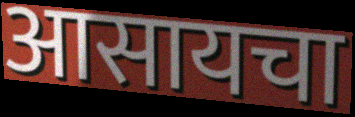
आसायचा